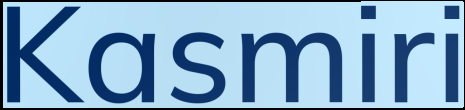
Kasmiri